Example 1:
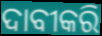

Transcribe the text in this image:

ଦାବୀକରି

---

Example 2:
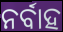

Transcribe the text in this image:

ନର୍ବାହ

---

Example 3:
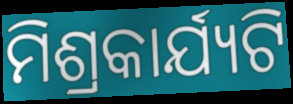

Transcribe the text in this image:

ମିଶ୍ରକାର୍ଯ୍ୟଟି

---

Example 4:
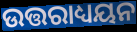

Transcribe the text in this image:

ଉତ୍ତରାଧ୍ୟୟନ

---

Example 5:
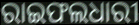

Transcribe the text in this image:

ରାଇଫଲଧାରୀ